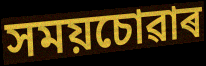
সময়চোৱাৰ